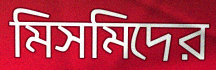
মিসমিদের